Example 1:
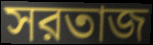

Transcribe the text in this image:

সরতাজ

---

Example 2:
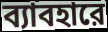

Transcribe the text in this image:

ব্যাবহারে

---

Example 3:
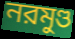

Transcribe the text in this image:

নরমুণ্ড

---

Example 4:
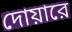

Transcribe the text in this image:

দোয়ারে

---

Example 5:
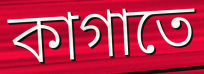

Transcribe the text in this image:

কাগাতে